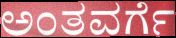
ಅಂತವರ್ಗೆ